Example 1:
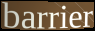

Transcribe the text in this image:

barrier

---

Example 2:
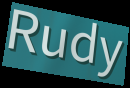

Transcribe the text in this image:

Rudy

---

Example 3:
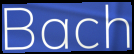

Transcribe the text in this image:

Bach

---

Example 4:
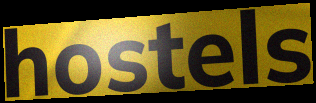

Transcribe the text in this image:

hostels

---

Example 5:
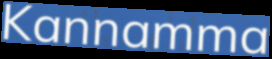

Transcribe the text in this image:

Kannamma